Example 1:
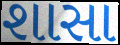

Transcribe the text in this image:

શાસા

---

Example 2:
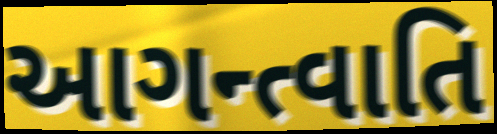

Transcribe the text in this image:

આગન્ત્વાતિ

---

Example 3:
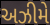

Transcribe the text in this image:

અઝીમે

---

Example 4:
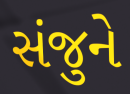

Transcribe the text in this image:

સંજુને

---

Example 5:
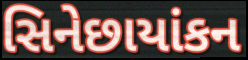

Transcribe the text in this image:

સિનેછાયાંકન